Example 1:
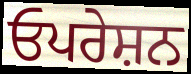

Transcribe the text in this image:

ਓਪਰੇਸ਼ਨ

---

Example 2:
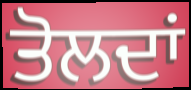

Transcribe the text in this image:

ਤੋਲਦਾਂ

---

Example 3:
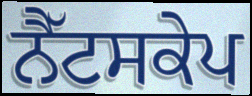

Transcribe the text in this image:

ਨੈੱਟਸਕੇਪ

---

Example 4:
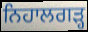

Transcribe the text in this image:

ਨਿਹਾਲਗੜ੍ਹ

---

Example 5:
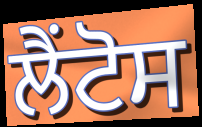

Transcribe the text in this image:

ਲੈਂਟੋਸ